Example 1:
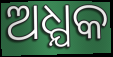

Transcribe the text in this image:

ଅଧ୍ଯକ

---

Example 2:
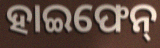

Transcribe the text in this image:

ହାଇଫେନ୍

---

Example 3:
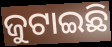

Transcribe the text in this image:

ଜୁଟାଇଛି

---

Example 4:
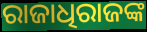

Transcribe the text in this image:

ରାଜାଧିରାଜଙ୍କ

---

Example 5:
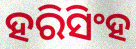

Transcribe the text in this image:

ହରିସିଂହ